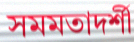
সমমতাদর্শী